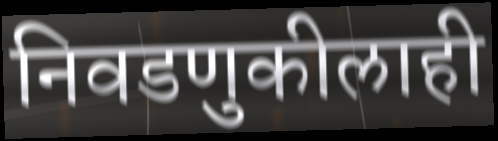
निवडणुकीलाही